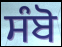
ਸੰਬੋ